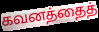
கவனத்தைத்